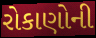
રોકાણોની